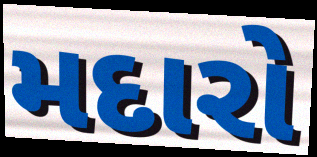
મદારો